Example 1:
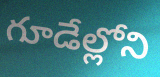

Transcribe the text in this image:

గూడేల్లోని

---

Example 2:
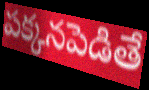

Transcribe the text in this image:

పక్కనపెడితే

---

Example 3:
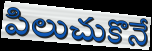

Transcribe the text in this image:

పిలుచుకొనే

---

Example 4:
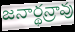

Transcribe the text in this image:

జనార్థన్రావు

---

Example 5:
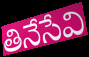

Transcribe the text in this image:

తినేసేవి